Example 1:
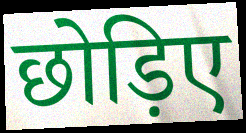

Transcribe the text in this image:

छोड़िए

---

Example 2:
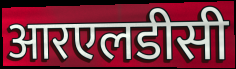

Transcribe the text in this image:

आरएलडीसी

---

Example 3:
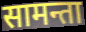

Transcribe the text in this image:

सामन्ता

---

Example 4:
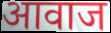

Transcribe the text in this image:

आवाज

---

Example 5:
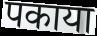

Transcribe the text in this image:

पकाया